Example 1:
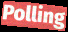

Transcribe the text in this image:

Polling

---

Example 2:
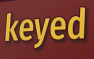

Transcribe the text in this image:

keyed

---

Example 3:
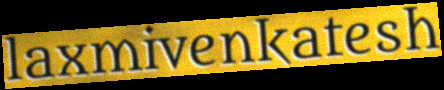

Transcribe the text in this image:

laxmivenkatesh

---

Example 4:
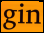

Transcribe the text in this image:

gin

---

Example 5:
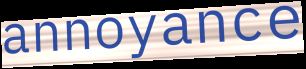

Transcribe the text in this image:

annoyance